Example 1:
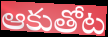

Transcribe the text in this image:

ఆకుతోట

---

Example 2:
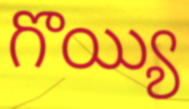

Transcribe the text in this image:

గొయ్యి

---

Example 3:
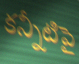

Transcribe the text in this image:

కన్నీటిపై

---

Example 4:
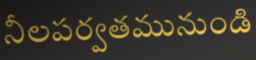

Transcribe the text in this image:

నీలపర్వతమునుండి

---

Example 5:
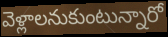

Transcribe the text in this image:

వెళ్లాలనుకుంటున్నారో